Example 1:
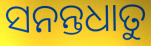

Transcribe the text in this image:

ସନନ୍ତଧାତୁ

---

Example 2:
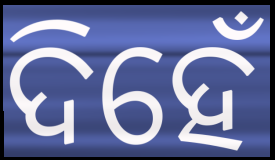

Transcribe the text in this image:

ଦିହେଁ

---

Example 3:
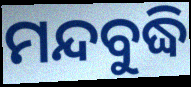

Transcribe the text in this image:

ମନ୍ଦବୁଦ୍ଧି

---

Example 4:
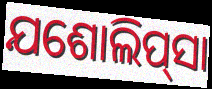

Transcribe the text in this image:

ଯଶୋଲିପ୍‌ସା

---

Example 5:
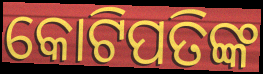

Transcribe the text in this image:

କୋଟିପତିଙ୍କ